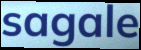
sagale